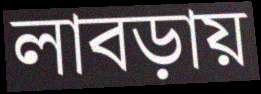
লাবড়ায়